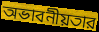
অভাবনীয়তার